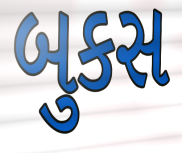
બુકસ